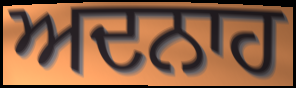
ਅਦਨਾਹ